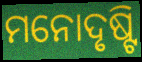
ମନୋଦୃଷ୍ଟି